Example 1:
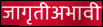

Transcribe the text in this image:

जागृतीअभावी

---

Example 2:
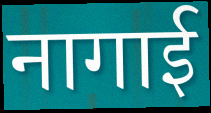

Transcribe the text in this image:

नागाई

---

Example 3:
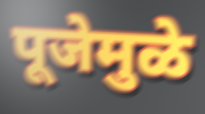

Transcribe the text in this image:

पूजेमुळे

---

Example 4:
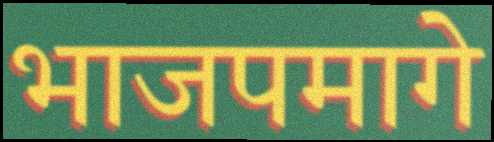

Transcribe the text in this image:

भाजपमागे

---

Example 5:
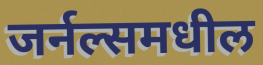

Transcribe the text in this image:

जर्नल्समधील